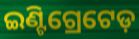
ଇଣ୍ଟିଗ୍ରେଟେଡ଼